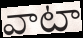
వాటా